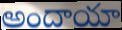
అందాయా